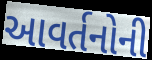
આવર્તનોની